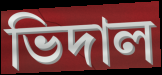
ভিদাল